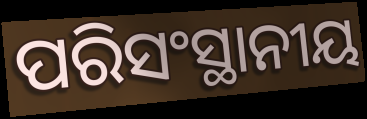
ପରିସଂସ୍ଥାନୀୟ